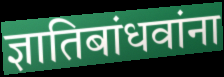
ज्ञातिबांधवांना